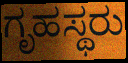
ಗೃಹಸ್ಥರು